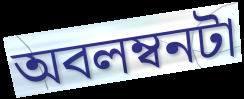
অবলম্বনটা